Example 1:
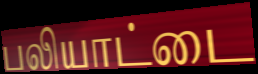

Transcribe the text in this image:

பலியாட்டை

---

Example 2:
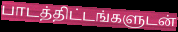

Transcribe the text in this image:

பாடத்திட்டங்களுடன்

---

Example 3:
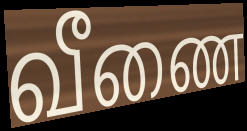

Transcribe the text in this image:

வீணை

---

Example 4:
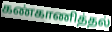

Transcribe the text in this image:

கண்காணித்தல்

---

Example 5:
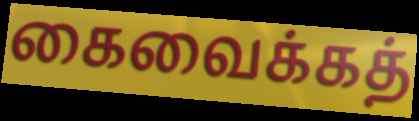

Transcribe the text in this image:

கைவைக்கத்